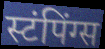
स्टंपिंग्स